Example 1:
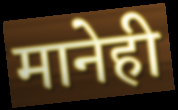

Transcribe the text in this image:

मानेही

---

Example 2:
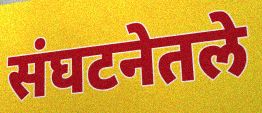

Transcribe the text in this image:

संघटनेतले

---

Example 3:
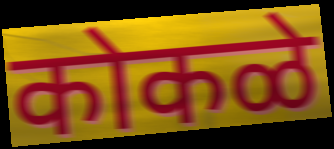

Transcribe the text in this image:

कोकळे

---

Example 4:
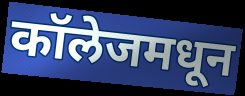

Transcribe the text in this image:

कॉलेजमधून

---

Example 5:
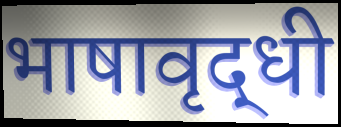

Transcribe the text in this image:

भाषावृद्धी